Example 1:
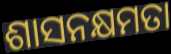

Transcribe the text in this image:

ଶାସନକ୍ଷମତା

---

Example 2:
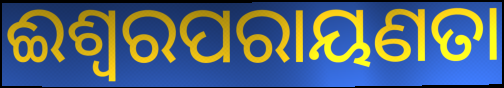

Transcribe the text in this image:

ଈଶ୍ୱରପରାୟଣତା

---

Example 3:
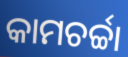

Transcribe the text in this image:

କାମଚର୍ଚ୍ଚା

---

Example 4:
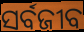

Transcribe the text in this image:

ସର୍ବଜୀବ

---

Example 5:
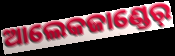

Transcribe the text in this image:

ଆଲେକଜାଣ୍ଡେର୍